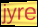
jyre